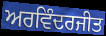
ਅਰਵਿੰਦਰਜੀਤ